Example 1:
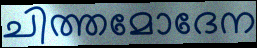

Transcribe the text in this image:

ചിത്തമോദേന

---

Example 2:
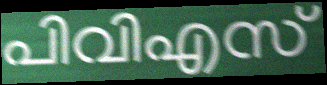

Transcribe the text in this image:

പിവിഎസ്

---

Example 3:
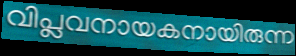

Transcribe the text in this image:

വിപ്ലവനായകനായിരുന്ന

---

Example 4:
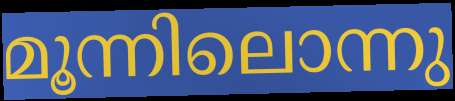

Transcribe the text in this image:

മൂന്നിലൊന്നു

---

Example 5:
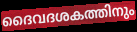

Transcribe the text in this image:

ദൈവദശകത്തിനും